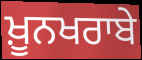
ਖ਼ੂਨਖਰਾਬੇ